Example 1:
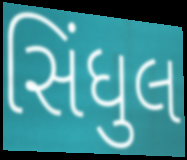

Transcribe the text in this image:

સિંધુલ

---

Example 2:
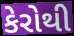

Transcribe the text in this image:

કેરોથી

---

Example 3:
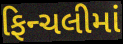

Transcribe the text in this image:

ફિન્ચલીમાં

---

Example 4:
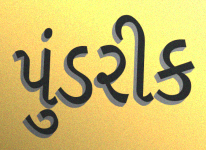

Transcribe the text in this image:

પુંડરીક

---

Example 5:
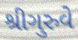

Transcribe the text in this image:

શ્રીગુરુવે